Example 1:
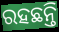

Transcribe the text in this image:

ରହଛନ୍ତି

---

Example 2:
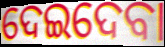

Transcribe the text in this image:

ଦେଇଦେବା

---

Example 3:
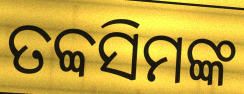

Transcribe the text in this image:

ତବ୍ବସିମଙ୍କ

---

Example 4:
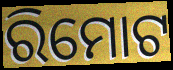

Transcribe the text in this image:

ରିମୋଟ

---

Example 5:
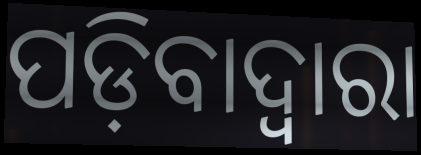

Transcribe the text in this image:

ପଡ଼ିବାଦ୍ୱାରା